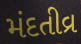
મંદતીવ્ર